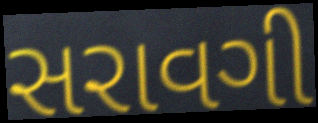
સરાવગી